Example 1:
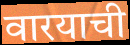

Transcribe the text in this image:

वारयाची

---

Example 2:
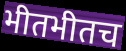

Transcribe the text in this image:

भीतभीतच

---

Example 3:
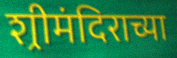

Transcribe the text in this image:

श्रीमंदिराच्या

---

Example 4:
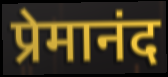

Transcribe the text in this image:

प्रेमानंद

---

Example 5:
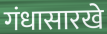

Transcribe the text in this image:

गंधासारखे